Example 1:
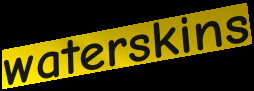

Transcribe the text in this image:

waterskins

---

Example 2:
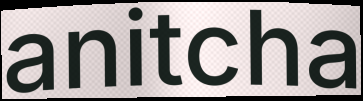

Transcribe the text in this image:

anitcha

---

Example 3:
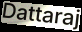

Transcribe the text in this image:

Dattaraj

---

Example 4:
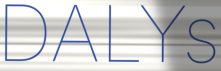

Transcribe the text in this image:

DALYs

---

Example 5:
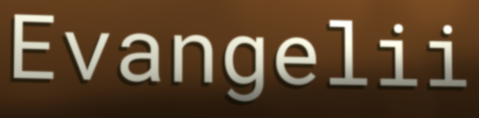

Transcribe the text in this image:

Evangelii